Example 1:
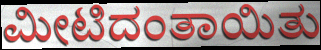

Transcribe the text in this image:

ಮೀಟಿದಂತಾಯಿತು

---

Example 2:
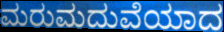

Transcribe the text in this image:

ಮರುಮದುವೆಯಾದ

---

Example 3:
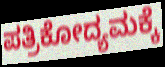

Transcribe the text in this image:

ಪತ್ರಿಕೋದ್ಯಮಕ್ಕೆ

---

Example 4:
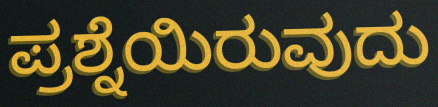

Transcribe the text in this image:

ಪ್ರಶ್ನೆಯಿರುವುದು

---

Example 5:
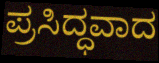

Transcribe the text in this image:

ಪ್ರಸಿದ್ಧವಾದ